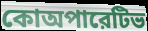
কোঅপারেটিভ